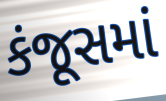
કંજૂસમાં